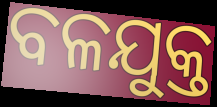
ବଳଯୁକ୍ତ